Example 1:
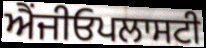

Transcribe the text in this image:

ਐਂਜੀਓਪਲਾਸਟੀ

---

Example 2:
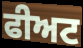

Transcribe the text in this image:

ਫੀਅਟ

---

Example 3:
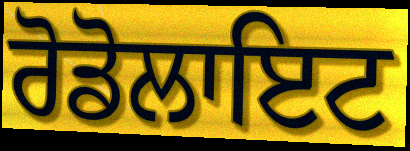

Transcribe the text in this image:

ਰੋਡੋਲਾਇਟ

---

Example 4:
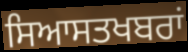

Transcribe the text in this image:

ਸਿਆਸਤਖਬਰਾਂ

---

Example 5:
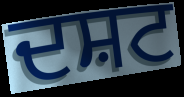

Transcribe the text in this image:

ਦਸ਼ਟ